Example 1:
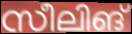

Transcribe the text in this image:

സീലിങ്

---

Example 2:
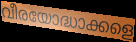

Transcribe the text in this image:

വീരയോദ്ധാക്കളെ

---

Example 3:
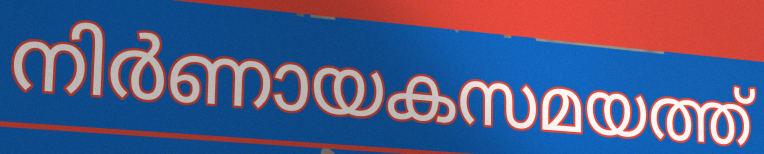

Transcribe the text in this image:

നിർണായകസമയത്ത്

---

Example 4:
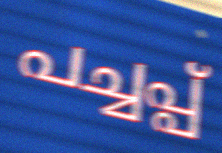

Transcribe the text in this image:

പച്ചപ്പ്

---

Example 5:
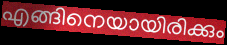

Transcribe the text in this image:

എങ്ങിനെയായിരിക്കും